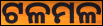
ଟଳମଳ